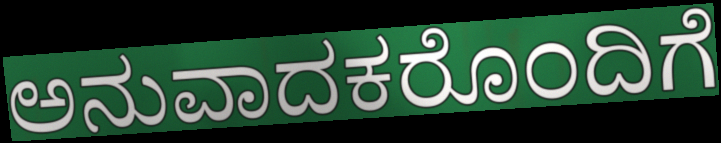
ಅನುವಾದಕರೊಂದಿಗೆ